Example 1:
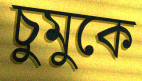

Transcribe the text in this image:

চুমুকে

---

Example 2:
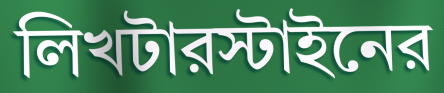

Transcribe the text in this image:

লিখটারস্টাইনের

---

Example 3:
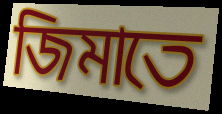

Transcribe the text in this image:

জিমাতে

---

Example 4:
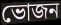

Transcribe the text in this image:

ভোজন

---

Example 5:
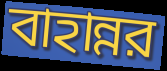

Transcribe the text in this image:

বাহান্নর